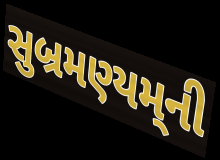
સુબ્રમણ્યમ્‌ની